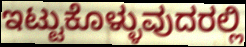
ಇಟ್ಟುಕೊಳ್ಳುವುದರಲ್ಲಿ